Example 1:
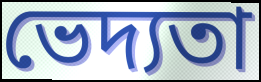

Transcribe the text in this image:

ভেদ্যতা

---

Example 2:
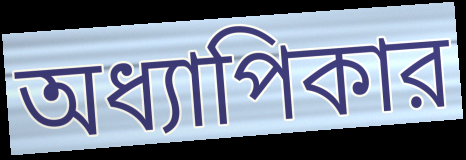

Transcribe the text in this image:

অধ্যাপিকার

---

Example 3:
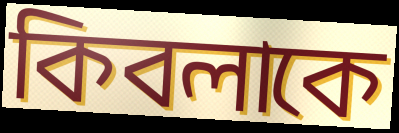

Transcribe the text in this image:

কিবলাকে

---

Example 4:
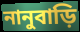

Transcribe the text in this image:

নানুবাড়ি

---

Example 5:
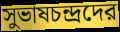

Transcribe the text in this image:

সুভাষচন্দ্রদের